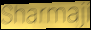
Sharmaji